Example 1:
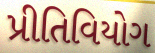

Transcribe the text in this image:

પ્રીતિવિયોગ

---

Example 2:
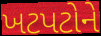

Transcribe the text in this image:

ખટપટોને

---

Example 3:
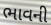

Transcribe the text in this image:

ભાવની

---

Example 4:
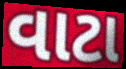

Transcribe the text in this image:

વાટા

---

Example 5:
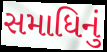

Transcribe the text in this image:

સમાધિનું